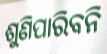
ଶୁଣିପାରିବନି